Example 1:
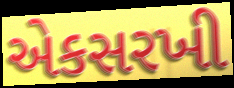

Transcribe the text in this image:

એકસરખી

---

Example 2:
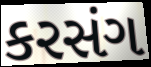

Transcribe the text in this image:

કરસંગ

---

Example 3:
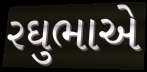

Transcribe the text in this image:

રઘુભાએ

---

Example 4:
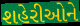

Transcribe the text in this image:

શહેરીઓને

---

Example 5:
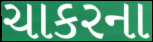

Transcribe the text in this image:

ચાકરના